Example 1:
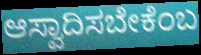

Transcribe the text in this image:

ಆಸ್ವಾದಿಸಬೇಕೆಂಬ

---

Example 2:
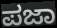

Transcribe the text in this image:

ಪಜಾ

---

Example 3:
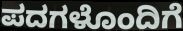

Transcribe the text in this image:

ಪದಗಳೊಂದಿಗೆ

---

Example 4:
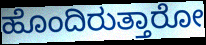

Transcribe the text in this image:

ಹೊಂದಿರುತ್ತಾರೋ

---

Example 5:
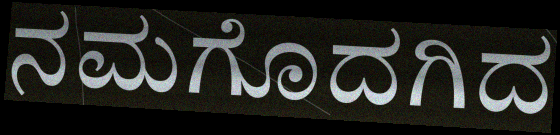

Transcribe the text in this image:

ನಮಗೊದಗಿದ